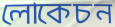
লোকেচন